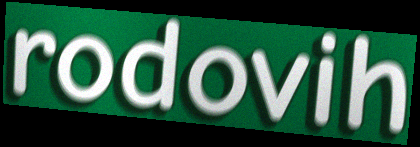
rodovih